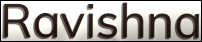
Ravishna